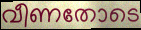
വീണതോടെ